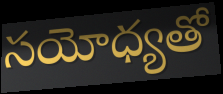
సయోధ్యతో